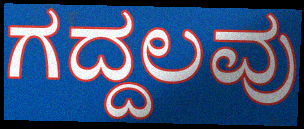
ಗದ್ದಲವು